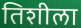
तिशीला